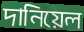
দানিয়েল